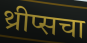
थ्रीप्सचा